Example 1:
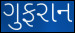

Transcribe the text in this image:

ગુફરાન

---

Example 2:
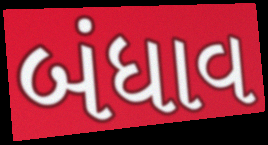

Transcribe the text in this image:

બંધાવ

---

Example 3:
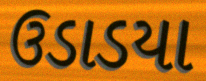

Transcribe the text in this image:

ઉડાડયા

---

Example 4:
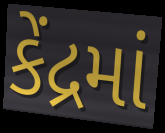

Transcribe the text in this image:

કેંદ્રમાં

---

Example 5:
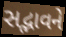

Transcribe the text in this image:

સદ્ભાવને